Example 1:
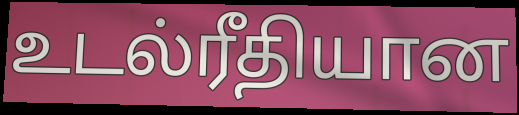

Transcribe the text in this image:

உடல்ரீதியான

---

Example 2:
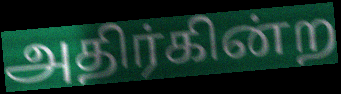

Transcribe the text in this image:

அதிர்கின்ற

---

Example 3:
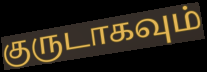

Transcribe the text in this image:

குருடாகவும்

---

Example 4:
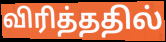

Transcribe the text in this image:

விரித்ததில்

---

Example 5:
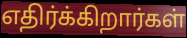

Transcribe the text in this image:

எதிர்க்கிறார்கள்